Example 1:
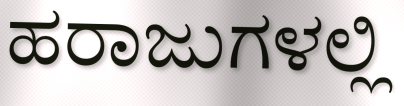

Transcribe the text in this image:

ಹರಾಜುಗಳಲ್ಲಿ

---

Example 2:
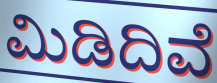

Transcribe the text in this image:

ಮಿಡಿದಿವೆ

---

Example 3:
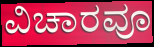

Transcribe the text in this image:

ವಿಚಾರವೂ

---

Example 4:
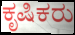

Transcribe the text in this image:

ಕೃಷಿಕರು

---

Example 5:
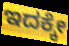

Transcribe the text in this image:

ಇದಕ್ಕೇ